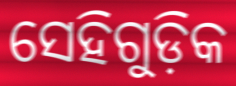
ସେହିଗୁଡ଼ିକ